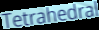
Tetrahedral